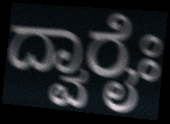
ದ್ವಾರೈಃ